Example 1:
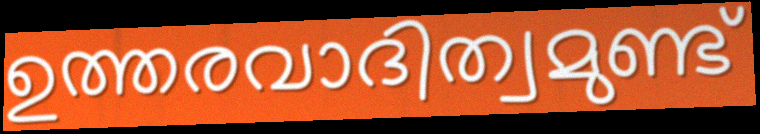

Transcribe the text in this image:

ഉത്തരവാദിത്വമുണ്ട്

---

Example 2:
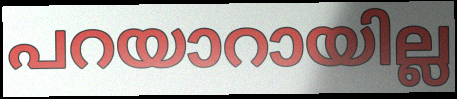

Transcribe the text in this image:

പറയാറായില്ല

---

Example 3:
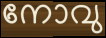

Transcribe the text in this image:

നോവു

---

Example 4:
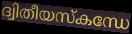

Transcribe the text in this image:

ദ്വിതീയസ്കന്ധേ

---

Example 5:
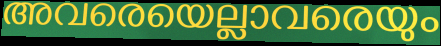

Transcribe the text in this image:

അവരെയെല്ലാവരെയും